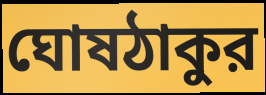
ঘোষঠাকুর